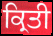
ਕ੍ਰਿਤੀ